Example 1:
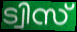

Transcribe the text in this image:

ട്വിസ്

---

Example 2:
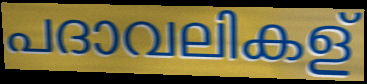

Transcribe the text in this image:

പദാവലികള്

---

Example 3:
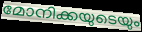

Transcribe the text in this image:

മോനിക്കയുടെയും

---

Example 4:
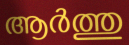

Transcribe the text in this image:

ആർത്തു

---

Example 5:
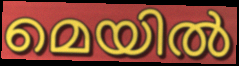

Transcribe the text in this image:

മെയിൽ